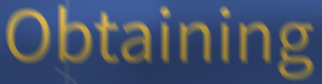
Obtaining